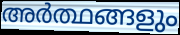
അർത്ഥങ്ങളും